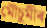
মৌচুমীৰ